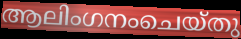
ആലിംഗനംചെയ്തു